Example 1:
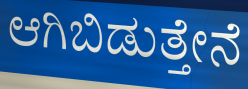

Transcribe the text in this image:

ಆಗಿಬಿಡುತ್ತೇನೆ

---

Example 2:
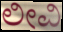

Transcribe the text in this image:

ಲೀವಿ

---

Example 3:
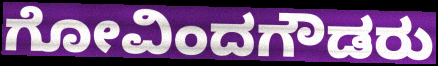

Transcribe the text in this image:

ಗೋವಿಂದಗೌಡರು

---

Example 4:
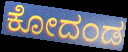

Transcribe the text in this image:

ಕೋದಂಡ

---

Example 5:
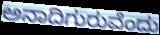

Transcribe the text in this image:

ಅನಾದಿಗುರುವೆಂದು